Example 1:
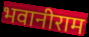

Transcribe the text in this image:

भवानीराम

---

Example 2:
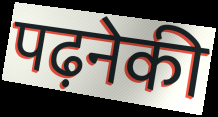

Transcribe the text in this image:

पढ़नेकी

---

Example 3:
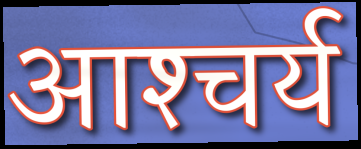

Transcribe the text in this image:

आश्‍चर्य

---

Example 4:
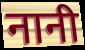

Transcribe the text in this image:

नानी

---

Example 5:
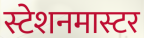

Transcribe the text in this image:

स्टेशनमास्टर